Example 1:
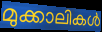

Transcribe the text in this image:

മുക്കാലികൾ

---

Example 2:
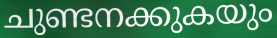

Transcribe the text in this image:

ചുണ്ടനക്കുകയും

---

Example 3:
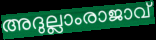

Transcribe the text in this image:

അദുല്ലാംരാജാവ്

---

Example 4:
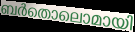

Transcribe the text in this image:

ബർതൊലൊമായി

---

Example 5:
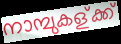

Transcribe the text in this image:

നാമ്പുകള്ക്ക്